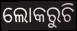
ଲୋକରୁଚି